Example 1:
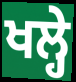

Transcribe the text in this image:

ਖਲ੍ਹੇ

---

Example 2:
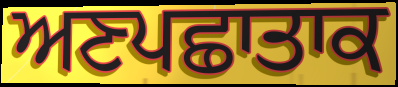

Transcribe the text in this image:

ਅਣਪਛਾਤਾਕ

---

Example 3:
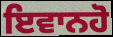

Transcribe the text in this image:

ਇਵਾਨਹੋ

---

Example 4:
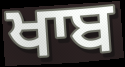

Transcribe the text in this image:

ਖਾਬ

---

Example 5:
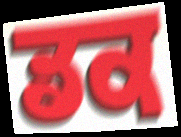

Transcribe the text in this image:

ਡਕ